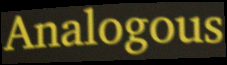
Analogous